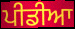
ਪੀਡੀਆ